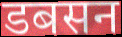
डबसन